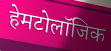
हेमटोलॉजिक